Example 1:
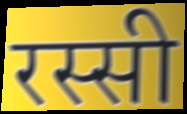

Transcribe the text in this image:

रस्सी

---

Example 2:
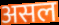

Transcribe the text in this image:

असल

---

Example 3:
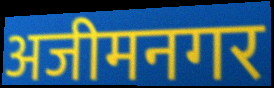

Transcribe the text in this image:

अजीमनगर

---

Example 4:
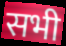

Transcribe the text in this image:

सभी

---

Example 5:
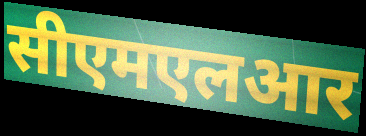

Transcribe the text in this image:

सीएमएलआर